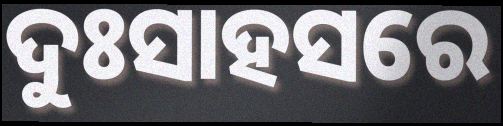
ଦୁଃସାହସରେ